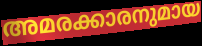
അമരക്കാരനുമായ